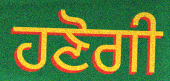
ਹਣੋਗੀ